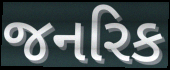
જનરિક